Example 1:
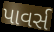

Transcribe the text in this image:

પાવર્સ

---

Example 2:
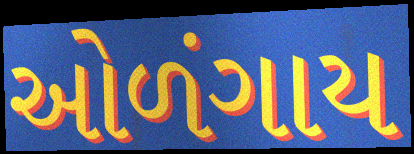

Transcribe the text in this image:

ઓળંગાય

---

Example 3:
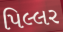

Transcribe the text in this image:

પિલ્લર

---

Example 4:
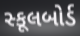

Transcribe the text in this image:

સ્કૂલબોર્ડ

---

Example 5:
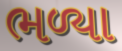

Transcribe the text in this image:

ભળ્યા